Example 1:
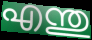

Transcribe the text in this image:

എന്തു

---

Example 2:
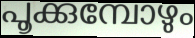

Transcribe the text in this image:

പൂക്കുമ്പോഴും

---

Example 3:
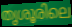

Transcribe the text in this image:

തൃശൂരിലെ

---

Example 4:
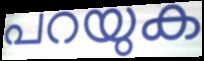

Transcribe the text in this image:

പറയുക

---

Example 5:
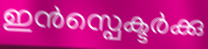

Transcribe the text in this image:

ഇൻസ്പെക്ടർക്കു